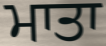
ਮਾਤਾ